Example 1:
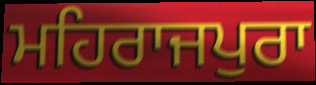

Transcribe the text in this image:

ਮਹਿਰਾਜਪੁਰਾ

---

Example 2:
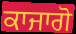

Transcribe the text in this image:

ਕਾਜਾਗੋ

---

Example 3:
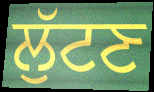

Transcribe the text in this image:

ਲੁੱਟਣ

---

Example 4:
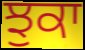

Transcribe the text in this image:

ਝੁਕਾ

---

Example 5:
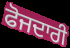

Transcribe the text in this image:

ਫੋਜਦਾਰੀ